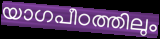
യാഗപീഠത്തിലും